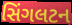
સિંગલટન